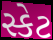
સ્કેટ